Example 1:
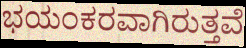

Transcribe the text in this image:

ಭಯಂಕರವಾಗಿರುತ್ತವೆ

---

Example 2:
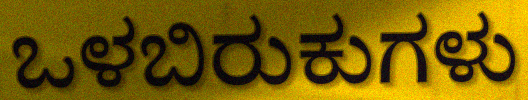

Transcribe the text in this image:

ಒಳಬಿರುಕುಗಳು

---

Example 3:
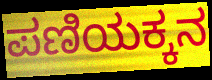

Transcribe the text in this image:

ಪಣಿಯಕ್ಕನ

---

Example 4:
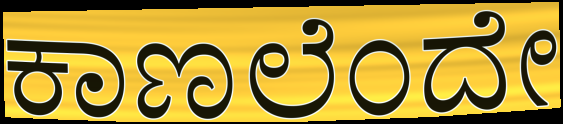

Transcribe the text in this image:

ಕಾಣಲೆಂದೇ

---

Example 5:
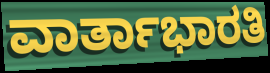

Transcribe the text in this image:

ವಾರ್ತಾಭಾರತಿ